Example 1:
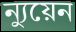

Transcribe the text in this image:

ন্যুয়েন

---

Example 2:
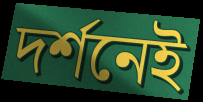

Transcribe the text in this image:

দর্শনেই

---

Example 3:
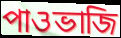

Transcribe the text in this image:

পাওভাজি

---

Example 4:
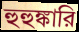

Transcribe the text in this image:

হুহুঙ্কারি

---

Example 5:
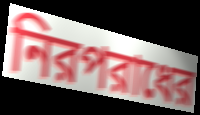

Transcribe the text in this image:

নিরপরাধের